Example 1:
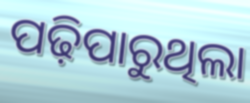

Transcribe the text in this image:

ପଢ଼ିପାରୁଥିଲା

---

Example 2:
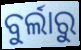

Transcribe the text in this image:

ବୁର୍ଲାରୁ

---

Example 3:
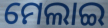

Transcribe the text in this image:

ମେଲାଇ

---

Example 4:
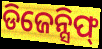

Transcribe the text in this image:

ଡିଜେନ୍ସିଫ୍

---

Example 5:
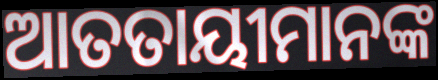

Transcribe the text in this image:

ଆତତାୟୀମାନଙ୍କ